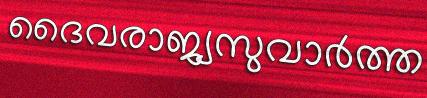
ദൈവരാജ്യസുവാർത്ത